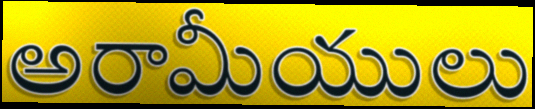
అరామీయులు